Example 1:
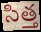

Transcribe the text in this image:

సిత్త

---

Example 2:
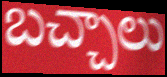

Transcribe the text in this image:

బచ్చాలు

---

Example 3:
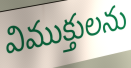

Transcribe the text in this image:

విముక్తులను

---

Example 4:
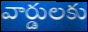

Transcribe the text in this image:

వార్డులకు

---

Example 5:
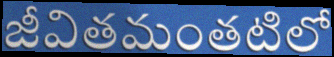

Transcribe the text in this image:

జీవితమంతటిలో